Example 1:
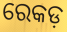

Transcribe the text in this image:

ରେକଡ଼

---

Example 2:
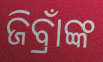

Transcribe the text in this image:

ଜିବ୍ରାଁଙ୍କ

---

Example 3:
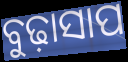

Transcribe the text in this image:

ବୁଢ଼ାସାପ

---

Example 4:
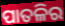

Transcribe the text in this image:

ପାତଳିର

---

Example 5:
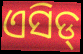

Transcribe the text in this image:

ଏସିଡ୍